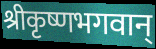
श्रीकृष्णभगवान्